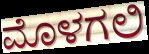
ಮೊಳಗಲಿ